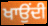
ਖਾਉਂਦੀ